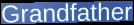
Grandfather